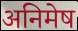
अनिमेष